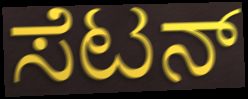
ಸೆಟನ್